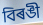
বিৰঙী